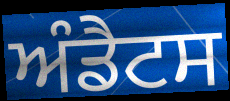
ਅੰਡੈਟਸ